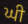
ਘੀ